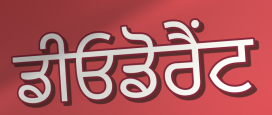
ਡੀਓਡੋਰੈਂਟ